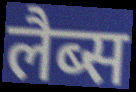
लैब्स